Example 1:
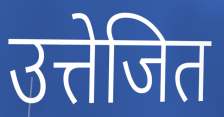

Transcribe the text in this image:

उत्तेजित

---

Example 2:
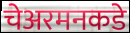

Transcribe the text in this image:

चेअरमनकडे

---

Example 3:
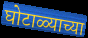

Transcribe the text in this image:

घोटाळ्याच्या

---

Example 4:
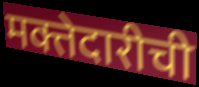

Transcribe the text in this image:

मक्तेदारीची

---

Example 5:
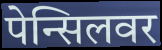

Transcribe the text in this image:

पेन्सिलवर